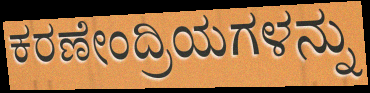
ಕರಣೇಂದ್ರಿಯಗಳನ್ನು